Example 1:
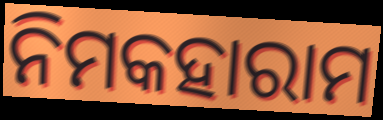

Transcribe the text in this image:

ନିମକହାରାମ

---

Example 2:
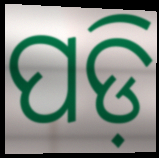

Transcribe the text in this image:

ପଡ଼ି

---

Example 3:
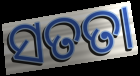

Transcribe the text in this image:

ସତତା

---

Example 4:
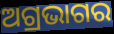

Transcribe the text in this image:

ଅଗ୍ରଭାଗର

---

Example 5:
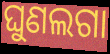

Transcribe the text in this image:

ଘୁଣଲଗା